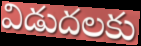
విడుదలకు